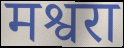
मश्वरा